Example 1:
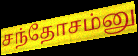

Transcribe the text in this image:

சந்தோசம்னு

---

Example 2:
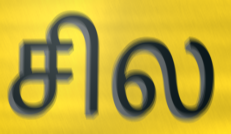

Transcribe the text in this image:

சில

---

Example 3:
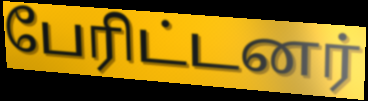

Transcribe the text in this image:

பேரிட்டனர்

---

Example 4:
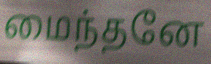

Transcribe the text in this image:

மைந்தனே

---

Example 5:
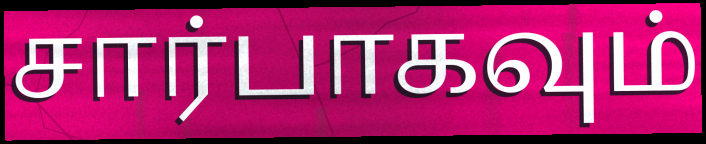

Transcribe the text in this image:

சார்பாகவும்